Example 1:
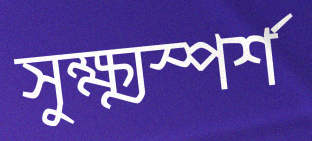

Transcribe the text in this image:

সুক্ষ্মস্পর্শ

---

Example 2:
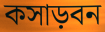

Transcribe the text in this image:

কসাড়বন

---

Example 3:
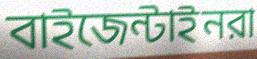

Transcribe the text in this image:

বাইজেন্টাইনরা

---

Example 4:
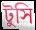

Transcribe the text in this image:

টুসি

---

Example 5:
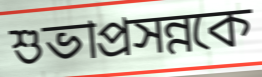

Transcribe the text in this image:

শুভাপ্রসন্নকে